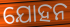
ଯୋହନ